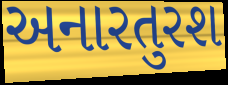
અનારતુરશ